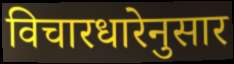
विचारधारेनुसार